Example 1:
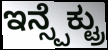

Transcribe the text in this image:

ಇನ್ಸ್ಪೆಕ್ಟ್ರು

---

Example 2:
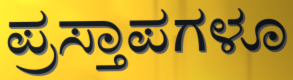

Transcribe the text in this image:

ಪ್ರಸ್ತಾಪಗಳೂ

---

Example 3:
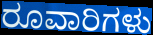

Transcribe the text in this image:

ರೂವಾರಿಗಳು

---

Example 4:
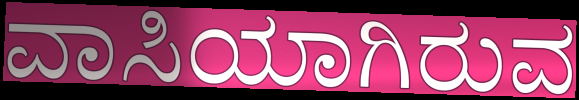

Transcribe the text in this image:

ವಾಸಿಯಾಗಿರುವ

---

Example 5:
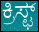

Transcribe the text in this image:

ಕ್ರಿಸ್ಟ್